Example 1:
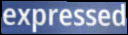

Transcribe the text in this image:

expressed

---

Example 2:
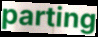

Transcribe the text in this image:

parting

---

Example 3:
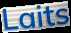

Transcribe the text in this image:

Laits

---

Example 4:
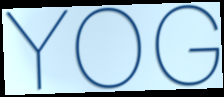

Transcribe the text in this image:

YOG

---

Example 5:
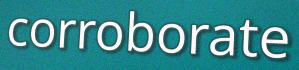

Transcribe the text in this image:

corroborate